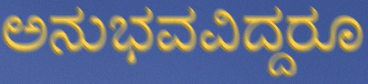
ಅನುಭವವಿದ್ದರೂ